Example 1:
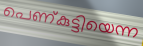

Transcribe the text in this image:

പെണ്കുട്ടിയെന്ന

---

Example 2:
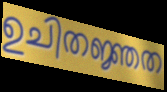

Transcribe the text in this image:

ഉചിതജ്ഞത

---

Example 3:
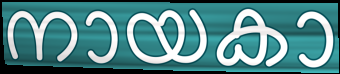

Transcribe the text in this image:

നായകാ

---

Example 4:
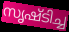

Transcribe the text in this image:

സൃഷ്ടിച്ച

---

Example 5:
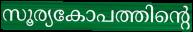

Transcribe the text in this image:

സൂര്യകോപത്തിന്റെ